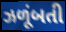
ઝળૂંબતી